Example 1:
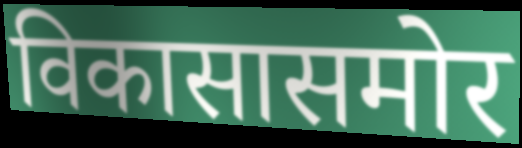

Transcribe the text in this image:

विकासासमोर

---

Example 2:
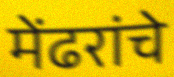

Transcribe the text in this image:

मेंढरांचे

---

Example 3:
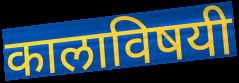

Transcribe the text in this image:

कालाविषयी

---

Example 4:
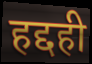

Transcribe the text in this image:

हद्दही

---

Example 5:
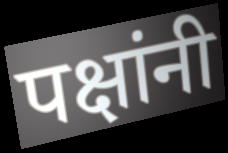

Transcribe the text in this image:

पक्षांनी